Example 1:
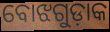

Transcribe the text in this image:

ବୋଝଗୁଡ଼ାକ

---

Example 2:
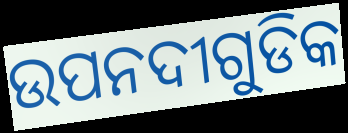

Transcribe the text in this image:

ଉପନଦୀଗୁଡିକ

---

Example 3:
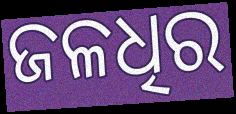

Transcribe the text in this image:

ଜଳଧିର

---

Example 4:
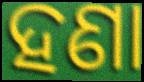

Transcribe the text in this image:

ହଣା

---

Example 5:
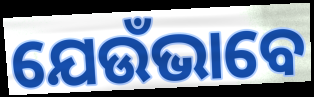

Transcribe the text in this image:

ଯେଉଁଭାବେ